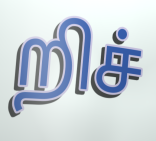
றிச்